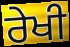
ਰੇਖੀ